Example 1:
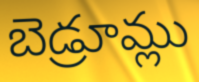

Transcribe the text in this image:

బెడ్రూమ్లు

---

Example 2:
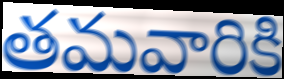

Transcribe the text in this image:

తమవారికి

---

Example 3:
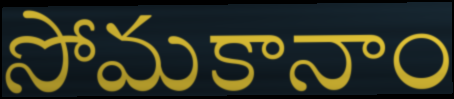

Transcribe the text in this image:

సోమకానాం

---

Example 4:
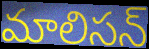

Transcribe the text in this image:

మాలిసన్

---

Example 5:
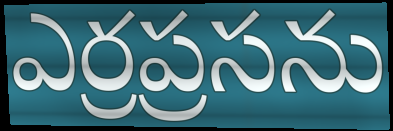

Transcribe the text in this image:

ఎర్రప్రసను